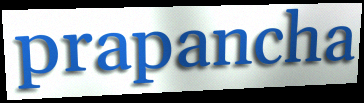
prapancha